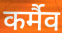
कर्मैव